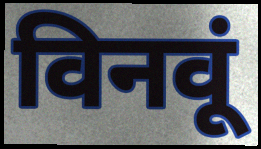
विनवूं